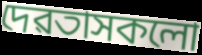
দেৱতাসকলো